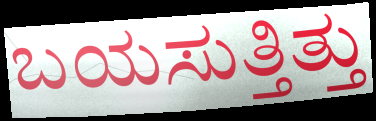
ಬಯಸುತ್ತಿತ್ತು